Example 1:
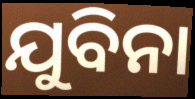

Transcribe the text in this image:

ଯୁବିନା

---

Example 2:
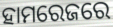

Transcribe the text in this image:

ହାମରେଜରେ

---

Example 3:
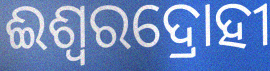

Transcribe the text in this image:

ଈଶ୍ଵରଦ୍ରୋହୀ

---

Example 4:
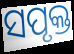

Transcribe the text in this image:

ସପୃକ୍ତ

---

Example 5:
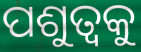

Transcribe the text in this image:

ପଶୁତ୍ୱକୁ